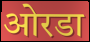
ओरडा